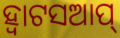
ହ୍ବାଟସଆପ୍